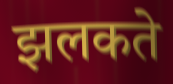
झलकते